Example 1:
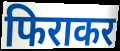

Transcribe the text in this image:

फिराकर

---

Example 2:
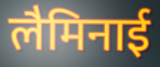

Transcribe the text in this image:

लैमिनाई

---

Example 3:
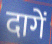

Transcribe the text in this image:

दागें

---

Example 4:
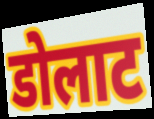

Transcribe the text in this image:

डोलाट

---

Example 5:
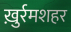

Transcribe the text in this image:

ख़ुर्रमशहर